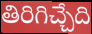
తిరిగిచ్చేది